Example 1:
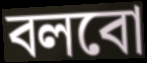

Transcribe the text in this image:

বলবো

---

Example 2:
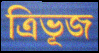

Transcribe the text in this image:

ত্ৰিভূজ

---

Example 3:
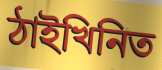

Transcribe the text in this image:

ঠাইখিনিত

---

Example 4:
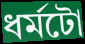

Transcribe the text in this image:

ধৰ্মটো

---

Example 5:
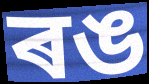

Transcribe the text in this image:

ৰঙ